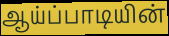
ஆய்ப்பாடியின்